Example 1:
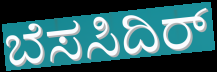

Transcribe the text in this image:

ಬೆಸಸಿದಿರ್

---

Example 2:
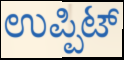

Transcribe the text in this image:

ಉಪ್ಪಿಟ್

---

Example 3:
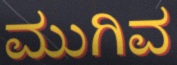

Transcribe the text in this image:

ಮುಗಿವ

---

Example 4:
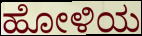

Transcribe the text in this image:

ಹೋಳಿಯ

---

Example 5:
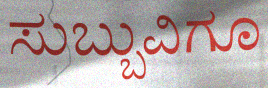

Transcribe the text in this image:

ಸುಬ್ಬುವಿಗೂ